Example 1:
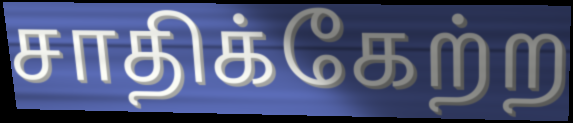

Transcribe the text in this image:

சாதிக்கேற்ற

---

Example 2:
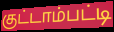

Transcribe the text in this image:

குட்டாம்பட்டி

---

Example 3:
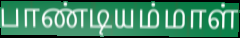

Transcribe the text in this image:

பாண்டியம்மாள்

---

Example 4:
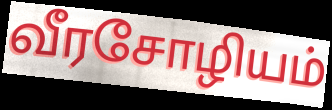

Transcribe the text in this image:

வீரசோழியம்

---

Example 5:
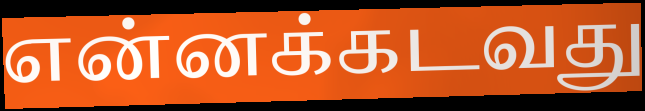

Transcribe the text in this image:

என்னக்கடவது